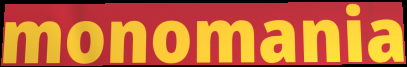
monomania